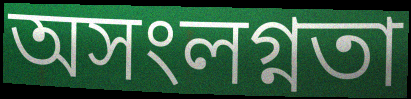
অসংলগ্নতা